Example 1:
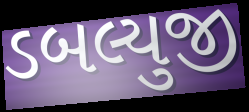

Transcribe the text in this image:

ડબલ્યુજી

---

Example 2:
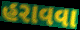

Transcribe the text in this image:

હરાવવા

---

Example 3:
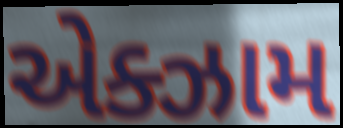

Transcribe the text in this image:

એક્ઝામ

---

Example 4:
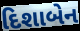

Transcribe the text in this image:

દિશાબેન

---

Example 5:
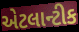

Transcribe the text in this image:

એટલાન્ટીક